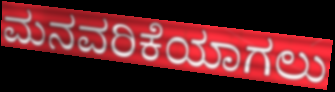
ಮನವರಿಕೆಯಾಗಲು